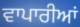
ਵਾਪਾਰੀਆਂ